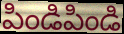
పిండిపిండి